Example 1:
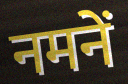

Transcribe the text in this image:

नमनें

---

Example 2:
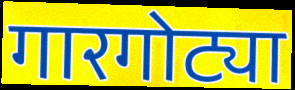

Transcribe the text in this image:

गारगोट्या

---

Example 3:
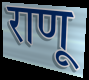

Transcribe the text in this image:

राणू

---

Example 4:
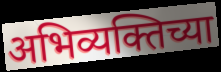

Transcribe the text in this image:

अभिव्यक्तिच्या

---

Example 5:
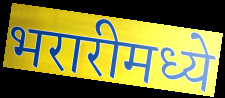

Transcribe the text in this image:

भरारीमध्ये